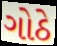
ગોઠે